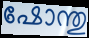
ഷോന്തു